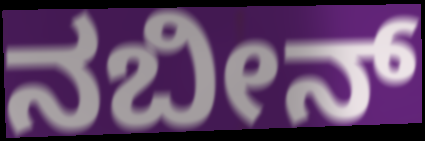
ನಬೀನ್